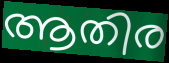
ആതിര